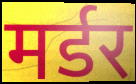
मर्डर